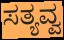
ಸತ್ಯವ್ವ